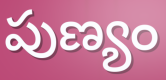
పుణ్యం